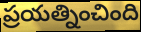
ప్రయత్నించింది